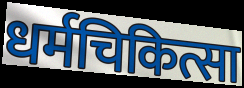
धर्मचिकित्सा